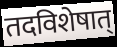
तदविशेषात्